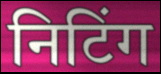
निटिंग